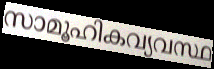
സാമൂഹികവ്യവസ്ഥ